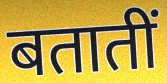
बतातीं